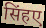
सिंहए